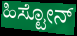
ಹಿಸ್ಟೋನ್